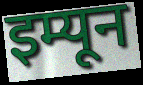
इम्‍यून